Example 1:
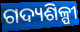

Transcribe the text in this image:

ଗଦ୍ୟଶିଳ୍ପୀ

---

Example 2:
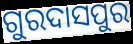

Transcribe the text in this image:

ଗୁରଦାସପୁର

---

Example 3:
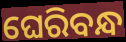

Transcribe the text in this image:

ଘେରିବନ୍ଧ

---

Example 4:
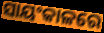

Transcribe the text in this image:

ସାୟଂକାଳରେ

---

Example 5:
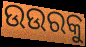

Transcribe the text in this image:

ଉଉରକୁ